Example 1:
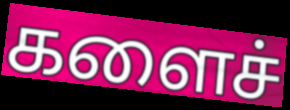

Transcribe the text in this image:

களைச்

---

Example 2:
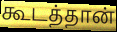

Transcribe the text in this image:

கூடத்தான்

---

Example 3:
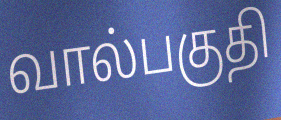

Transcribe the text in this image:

வால்பகுதி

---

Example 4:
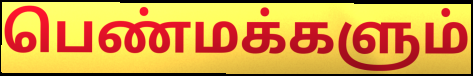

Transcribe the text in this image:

பெண்மக்களும்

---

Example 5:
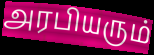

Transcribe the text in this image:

அரபியரும்